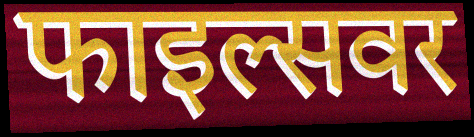
फाइल्सवर